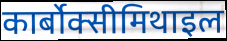
कार्बोक्सीमिथाइल